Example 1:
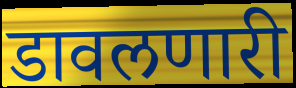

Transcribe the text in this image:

डावलणारी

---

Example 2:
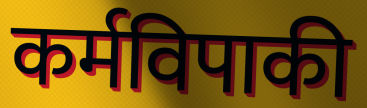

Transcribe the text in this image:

कर्मविपाकी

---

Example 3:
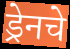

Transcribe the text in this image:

ड्रेनचे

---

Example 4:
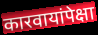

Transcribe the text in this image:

कारवायांपेक्षा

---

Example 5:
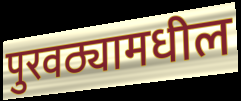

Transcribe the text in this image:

पुरवठ्यामधील